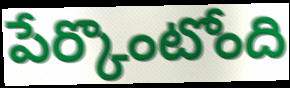
పేర్కొంటోంది